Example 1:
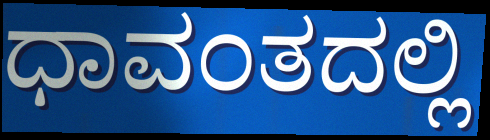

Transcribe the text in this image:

ಧಾವಂತದಲ್ಲಿ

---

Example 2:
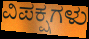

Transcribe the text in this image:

ವಿಪಕ್ಷಗಳು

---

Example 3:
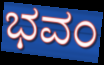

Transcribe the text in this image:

ಭವಂ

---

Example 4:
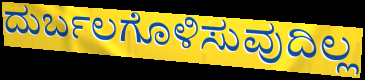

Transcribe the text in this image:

ದುರ್ಬಲಗೊಳಿಸುವುದಿಲ್ಲ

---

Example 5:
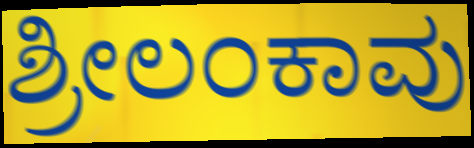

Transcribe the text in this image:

ಶ್ರೀಲಂಕಾವು